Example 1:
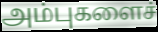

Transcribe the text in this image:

அம்புகளைச்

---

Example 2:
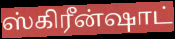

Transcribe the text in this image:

ஸ்கிரீன்ஷாட்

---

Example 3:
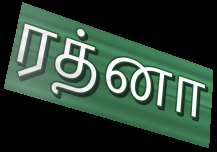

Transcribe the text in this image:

ரத்னா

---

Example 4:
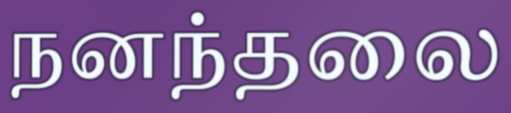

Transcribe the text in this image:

நனந்தலை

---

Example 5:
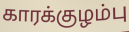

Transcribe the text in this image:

காரக்குழம்பு